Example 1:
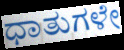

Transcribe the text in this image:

ಧಾತುಗಳೇ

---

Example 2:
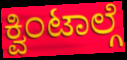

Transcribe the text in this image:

ಕ್ವಿಂಟಾಲ್ಗೆ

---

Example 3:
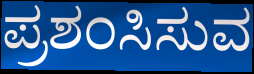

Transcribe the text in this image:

ಪ್ರಶಂಸಿಸುವ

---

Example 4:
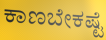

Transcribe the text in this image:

ಕಾಣಬೇಕಷ್ಟೆ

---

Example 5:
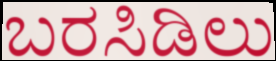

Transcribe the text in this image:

ಬರಸಿಡಿಲು